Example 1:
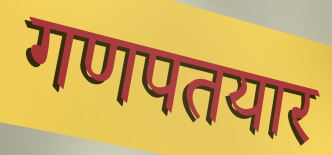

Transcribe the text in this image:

गणपतयार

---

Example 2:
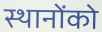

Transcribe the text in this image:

स्थानोंको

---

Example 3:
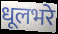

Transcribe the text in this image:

धूलभरे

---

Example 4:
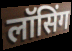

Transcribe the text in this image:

लॉसिंग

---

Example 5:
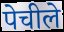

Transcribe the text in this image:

पेचीले